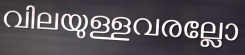
വിലയുള്ളവരല്ലോ